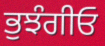
ਭੁਝੰਗੀਓ